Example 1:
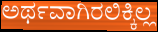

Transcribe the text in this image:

ಅರ್ಥವಾಗಿರಲಿಕ್ಕಿಲ್ಲ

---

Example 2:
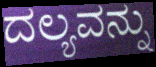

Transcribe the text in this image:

ದಲ್ಯವನ್ನು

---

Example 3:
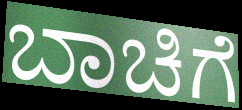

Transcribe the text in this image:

ಬಾಚಿಗೆ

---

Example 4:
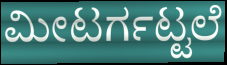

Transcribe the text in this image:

ಮೀಟರ್ಗಟ್ಟಲೆ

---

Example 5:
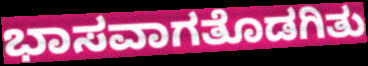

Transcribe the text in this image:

ಭಾಸವಾಗತೊಡಗಿತು